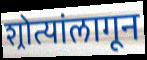
श्रोत्यांलागून